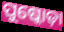
ପୁଷ୍କୋଡ଼ା